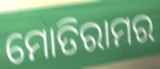
ମୋତିରାମର